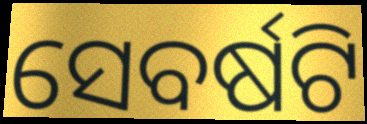
ସେବର୍ଷଟି